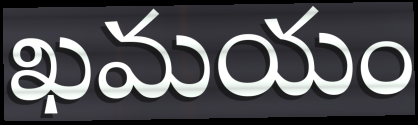
ఖమయం